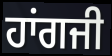
ਹਾਂਗਜੀ